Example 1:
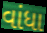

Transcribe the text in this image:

વાંધા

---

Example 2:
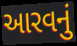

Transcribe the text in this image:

આરવનું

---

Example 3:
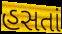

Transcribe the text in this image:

હસતાં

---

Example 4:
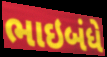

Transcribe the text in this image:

ભાઇબંધે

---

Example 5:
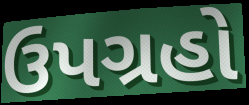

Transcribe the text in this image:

ઉપગ્રહો